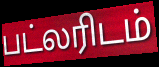
பட்லரிடம்